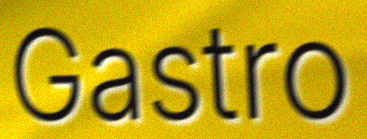
Gastro